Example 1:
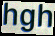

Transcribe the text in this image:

hgh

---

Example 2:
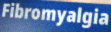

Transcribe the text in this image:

Fibromyalgia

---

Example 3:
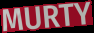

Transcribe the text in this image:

MURTY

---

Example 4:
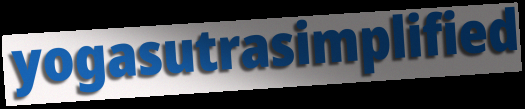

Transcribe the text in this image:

yogasutrasimplified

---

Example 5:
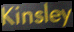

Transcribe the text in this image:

Kinsley